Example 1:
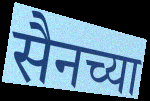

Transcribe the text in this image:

सैनच्या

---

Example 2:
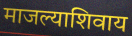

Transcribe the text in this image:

माजल्याशिवाय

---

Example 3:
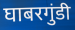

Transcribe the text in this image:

घाबरगुंडी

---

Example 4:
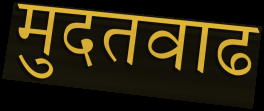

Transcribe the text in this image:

मुदतवाढ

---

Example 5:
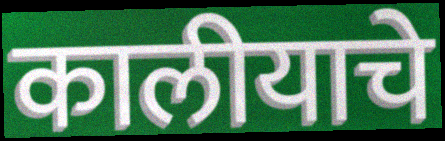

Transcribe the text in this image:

कालीयाचे